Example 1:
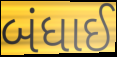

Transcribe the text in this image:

બંધાઈ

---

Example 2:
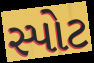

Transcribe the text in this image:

સ્પોટ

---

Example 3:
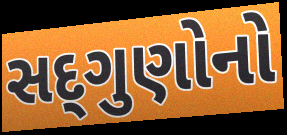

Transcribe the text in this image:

સદ્‌ગુણોનો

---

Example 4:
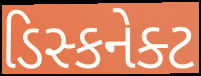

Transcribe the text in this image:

ડિસ્કનેક્ટ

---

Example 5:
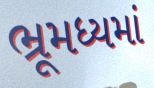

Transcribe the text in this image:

ભ્રૂમધ્યમાં